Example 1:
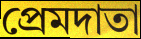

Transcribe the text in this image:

প্রেমদাতা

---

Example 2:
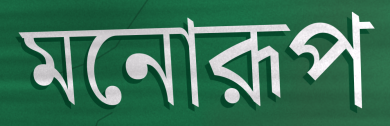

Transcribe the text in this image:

মনোরূপ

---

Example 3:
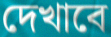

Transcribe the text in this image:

দেখাবে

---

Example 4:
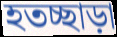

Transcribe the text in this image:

হতচ্ছাড়া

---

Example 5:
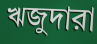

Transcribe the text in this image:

ঋজুদারা